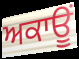
ਅਕਾਊਂ